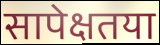
सापेक्षतया